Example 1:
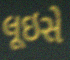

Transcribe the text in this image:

લૂઇસે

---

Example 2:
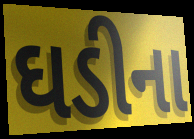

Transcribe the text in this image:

ઘડીના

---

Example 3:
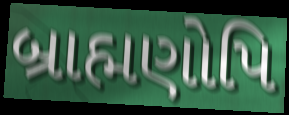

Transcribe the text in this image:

બ્રાહ્મણોપિ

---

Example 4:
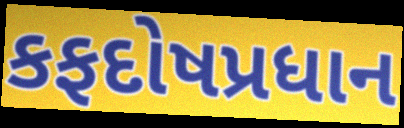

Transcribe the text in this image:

કફદોષપ્રધાન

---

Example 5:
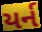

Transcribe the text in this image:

યર્ન